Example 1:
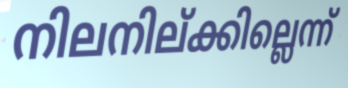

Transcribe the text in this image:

നിലനില്ക്കില്ലെന്ന്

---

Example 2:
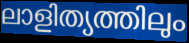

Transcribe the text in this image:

ലാളിത്യത്തിലും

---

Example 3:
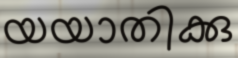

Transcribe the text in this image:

യയാതിക്കു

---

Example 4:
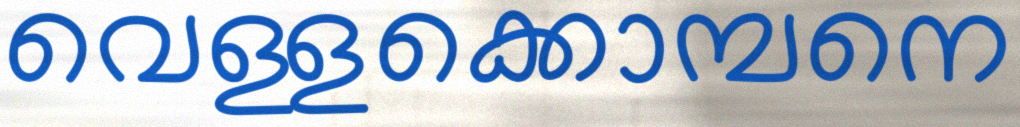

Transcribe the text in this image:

വെള്ളക്കൊമ്പനെ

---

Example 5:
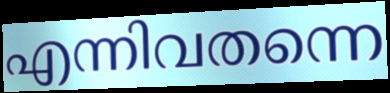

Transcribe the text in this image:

എന്നിവതന്നെ